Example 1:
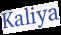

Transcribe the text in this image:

Kaliya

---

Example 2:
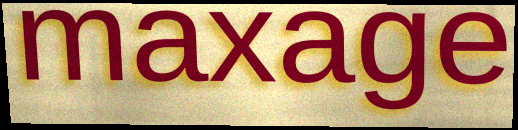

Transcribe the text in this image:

maxage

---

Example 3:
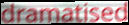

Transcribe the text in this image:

dramatised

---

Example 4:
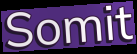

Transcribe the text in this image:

Somit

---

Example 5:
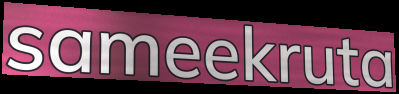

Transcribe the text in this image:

sameekruta